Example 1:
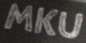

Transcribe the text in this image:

MKU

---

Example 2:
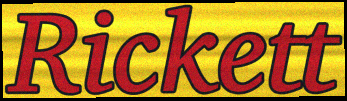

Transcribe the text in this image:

Rickett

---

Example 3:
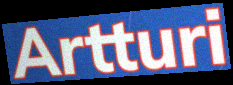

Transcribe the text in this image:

Artturi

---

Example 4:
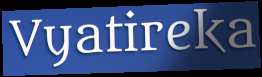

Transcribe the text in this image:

Vyatireka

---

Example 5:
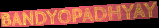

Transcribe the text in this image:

BANDYOPADHYAY